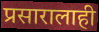
प्रसारालाही